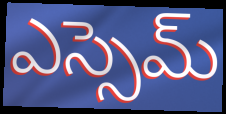
ఎస్సెమ్